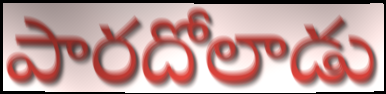
పారదోలాడు